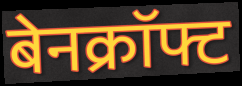
बेनक्रॉफ्ट